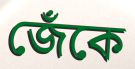
জেঁকে